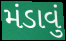
મંડાવું